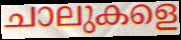
ചാലുകളെ